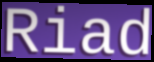
Riad